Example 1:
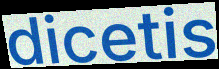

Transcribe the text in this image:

dicetis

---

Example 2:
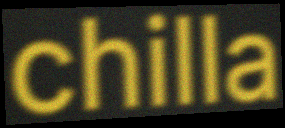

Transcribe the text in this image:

chilla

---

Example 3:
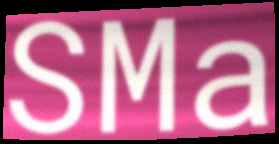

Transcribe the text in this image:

SMa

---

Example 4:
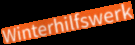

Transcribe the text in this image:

Winterhilfswerk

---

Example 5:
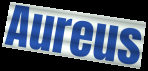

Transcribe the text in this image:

Aureus